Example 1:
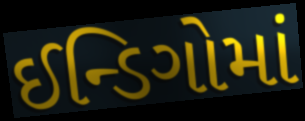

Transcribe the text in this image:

ઈન્ડિગોમાં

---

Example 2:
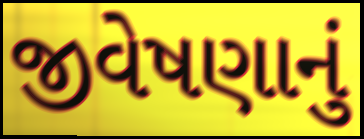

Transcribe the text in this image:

જીવેષણાનું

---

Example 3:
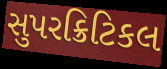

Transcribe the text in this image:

સુપરક્રિટિકલ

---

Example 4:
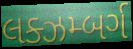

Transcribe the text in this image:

લક્ઝમ્બર્ગ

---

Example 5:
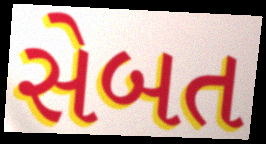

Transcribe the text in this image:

સેબત